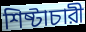
শিষ্টাচারী